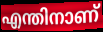
എന്തിനാണ്